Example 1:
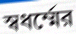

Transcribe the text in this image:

স্বধর্ম্মের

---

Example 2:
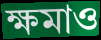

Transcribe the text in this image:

ক্ষমাও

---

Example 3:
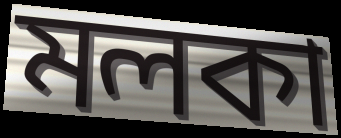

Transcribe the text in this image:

মলকা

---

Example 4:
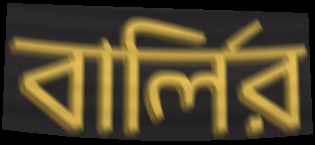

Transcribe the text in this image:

বার্লির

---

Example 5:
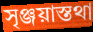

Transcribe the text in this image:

সৃঞ্জয়াস্তথা